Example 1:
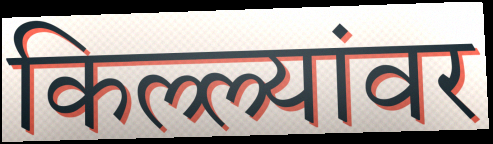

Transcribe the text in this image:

किल्ल्यांवर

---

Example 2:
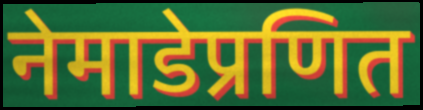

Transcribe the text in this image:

नेमाडेप्रणित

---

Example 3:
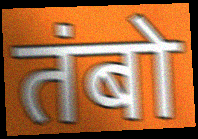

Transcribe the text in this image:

तंबो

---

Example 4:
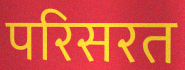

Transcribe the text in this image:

परिसरत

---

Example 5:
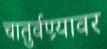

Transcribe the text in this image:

चातुर्वण्र्यावर